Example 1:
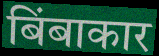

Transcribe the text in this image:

बिंबाकार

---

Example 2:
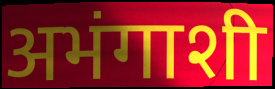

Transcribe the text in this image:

अभंगाशी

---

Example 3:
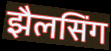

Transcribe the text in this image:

झैलसिंग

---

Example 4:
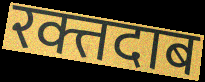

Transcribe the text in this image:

रक्तदाब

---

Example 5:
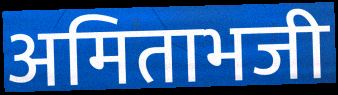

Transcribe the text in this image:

अमिताभजी